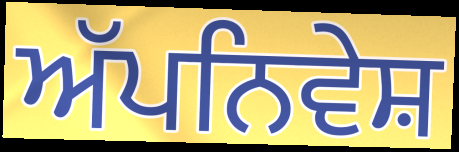
ਅੱਪਨਿਵੇਸ਼